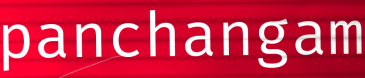
panchangam